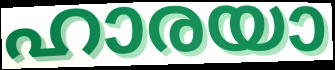
ഹാരയാ